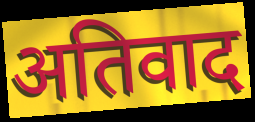
अतिवाद